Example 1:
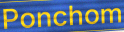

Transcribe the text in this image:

Ponchom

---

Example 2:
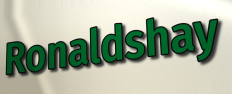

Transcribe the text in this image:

Ronaldshay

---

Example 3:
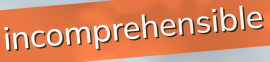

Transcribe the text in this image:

incomprehensible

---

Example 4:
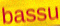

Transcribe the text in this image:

bassu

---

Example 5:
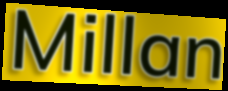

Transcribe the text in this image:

Millan